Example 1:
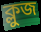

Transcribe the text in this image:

ক্লুজ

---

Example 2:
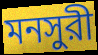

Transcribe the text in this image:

মনসুরী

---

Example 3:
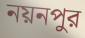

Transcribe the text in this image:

নয়নপুর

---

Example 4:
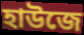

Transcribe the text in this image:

হাউজে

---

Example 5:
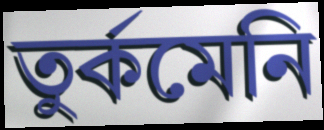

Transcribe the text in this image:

তুর্কমেনি